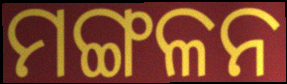
ମଙ୍ଗଳନ